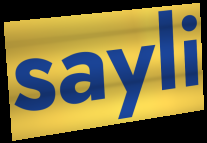
sayli